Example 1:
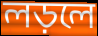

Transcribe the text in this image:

লড়লে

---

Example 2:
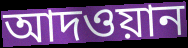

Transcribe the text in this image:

আদওয়ান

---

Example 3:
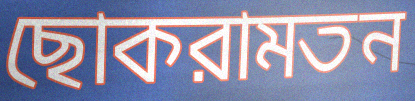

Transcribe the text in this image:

ছোকরামতন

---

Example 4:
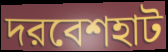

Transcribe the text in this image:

দরবেশহাট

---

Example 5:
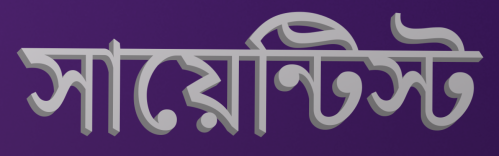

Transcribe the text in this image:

সায়েন্টিস্ট